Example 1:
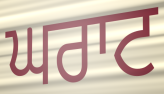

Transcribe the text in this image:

ਘਰਾਟ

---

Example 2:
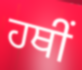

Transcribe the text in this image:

ਹਥੀਂ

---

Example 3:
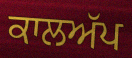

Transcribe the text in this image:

ਕਾਲਅੱਪ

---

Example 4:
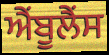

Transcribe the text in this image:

ਐੰਬੂਲੈੰਸ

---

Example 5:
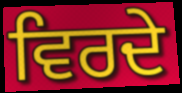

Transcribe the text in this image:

ਵਿਰਦੇ